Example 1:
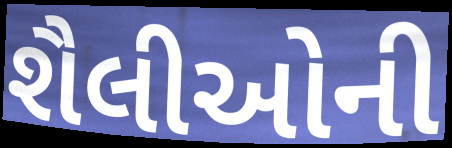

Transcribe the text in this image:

શૈલીઓની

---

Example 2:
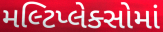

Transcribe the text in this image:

મલ્ટિપ્લેક્સોમાં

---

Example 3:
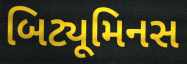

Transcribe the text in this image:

બિટ્યૂમિનસ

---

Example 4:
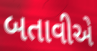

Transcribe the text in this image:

બતાવીએ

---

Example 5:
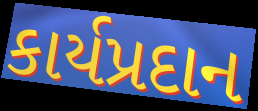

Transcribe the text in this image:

કાર્યપ્રદાન